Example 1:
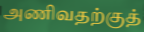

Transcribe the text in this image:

அணிவதற்குத்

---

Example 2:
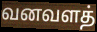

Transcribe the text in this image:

வனவளத்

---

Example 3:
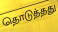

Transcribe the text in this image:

தொடுத்தது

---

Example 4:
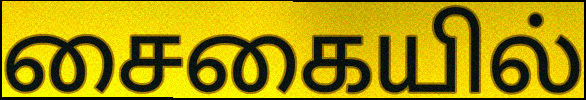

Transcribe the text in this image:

சைகையில்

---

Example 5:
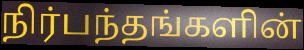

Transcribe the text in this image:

நிர்பந்தங்களின்